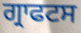
ਗ੍ਰਾਫਟਸ